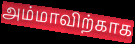
அம்மாவிற்காக